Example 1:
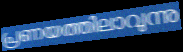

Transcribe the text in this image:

പ്രണയത്തിലാവുന്നു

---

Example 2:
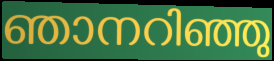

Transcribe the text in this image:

ഞാനറിഞ്ഞു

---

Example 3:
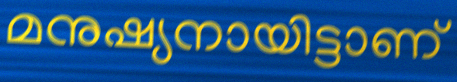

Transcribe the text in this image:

മനുഷ്യനായിട്ടാണ്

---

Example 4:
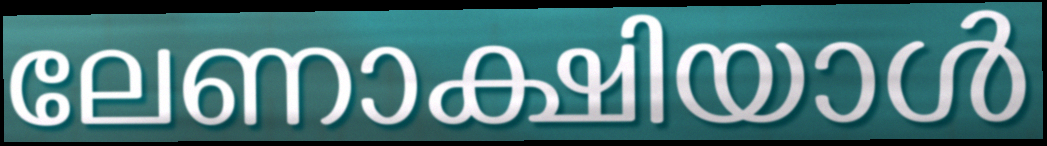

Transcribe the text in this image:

ലേണാക്ഷിയാൾ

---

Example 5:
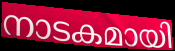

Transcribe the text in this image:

നാടകമായി